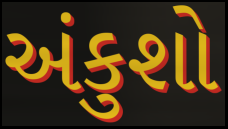
અંકુશો